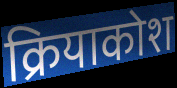
क्रियाकोश